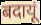
बदायूं